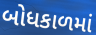
બોધકાળમાં